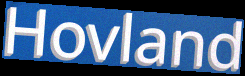
Hovland